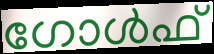
ഗോൾഫ്